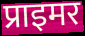
प्राइमर